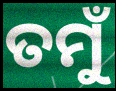
ତମୁଁ